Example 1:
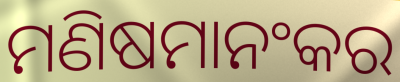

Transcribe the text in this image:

ମଣିଷମାନଂକର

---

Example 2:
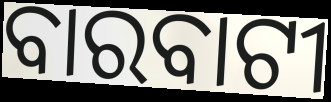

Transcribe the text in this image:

ବାରବାଟୀ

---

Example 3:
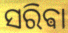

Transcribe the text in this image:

ସରିଵା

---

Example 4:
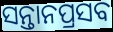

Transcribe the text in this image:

ସନ୍ତାନପ୍ରସବ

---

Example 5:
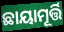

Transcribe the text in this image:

ଛାୟାମୂର୍ତ୍ତି